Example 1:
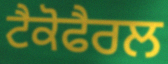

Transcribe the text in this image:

ਟੈਕੋਫੈਰਲ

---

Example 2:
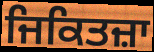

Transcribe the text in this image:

ਜਿਕਿਤਜ਼ਾ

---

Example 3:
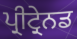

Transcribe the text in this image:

ਪ੍ਰੀਟ੍ਰੇਨਡ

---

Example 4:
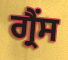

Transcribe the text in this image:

ਗ੍ਰੈਂਸ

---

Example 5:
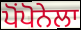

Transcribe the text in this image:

ਪੋਂਪੋਨੇਲਾ